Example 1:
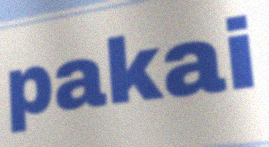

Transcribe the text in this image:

pakai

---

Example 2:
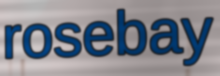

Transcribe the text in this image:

rosebay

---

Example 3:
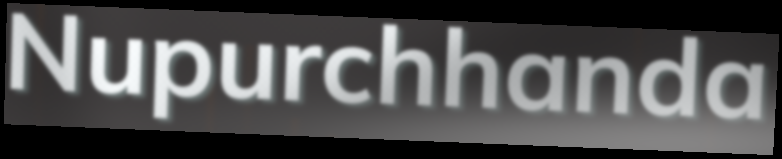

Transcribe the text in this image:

Nupurchhanda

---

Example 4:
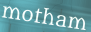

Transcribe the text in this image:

motham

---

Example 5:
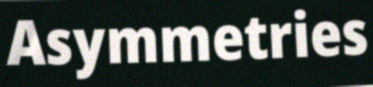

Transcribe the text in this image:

Asymmetries